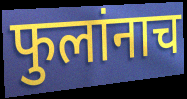
फुलांनाच